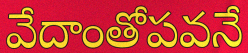
వేదాంతోపవనే